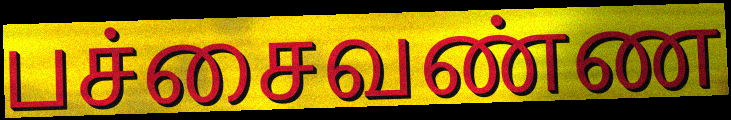
பச்சைவண்ண